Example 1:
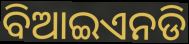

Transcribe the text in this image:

ବିଆଇଏନଡି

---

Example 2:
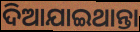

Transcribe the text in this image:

ଦିଆଯାଇଥାନ୍ତା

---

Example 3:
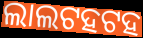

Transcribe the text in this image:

ଲାଲଟହଟହ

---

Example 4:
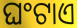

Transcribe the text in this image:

ଘଂଟାଏ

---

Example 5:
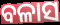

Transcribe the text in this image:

ବଳାସ